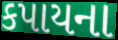
કપાયના